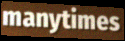
manytimes